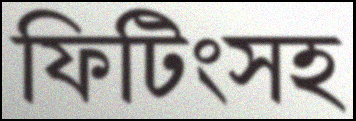
ফিটিংসহ